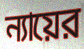
ন্যায়ের